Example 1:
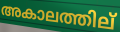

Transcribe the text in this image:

അകാലത്തില്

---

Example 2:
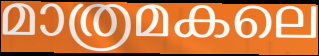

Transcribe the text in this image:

മാത്രമകലെ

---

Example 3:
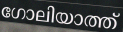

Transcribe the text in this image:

ഗോലിയാത്ത്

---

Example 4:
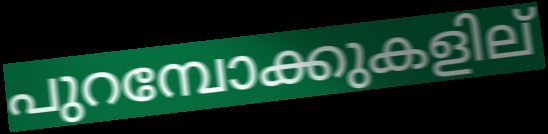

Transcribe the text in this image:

പുറമ്പോക്കുകളില്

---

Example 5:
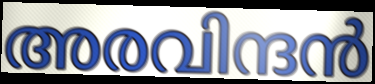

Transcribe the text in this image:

അരവിന്ദൻ